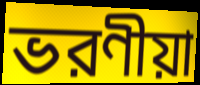
ভরণীয়া